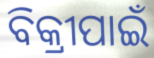
ବିକ୍ରୀପାଇଁ